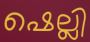
ഷെല്ലി